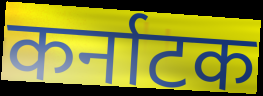
कर्नाटक